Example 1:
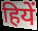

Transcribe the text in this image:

हियें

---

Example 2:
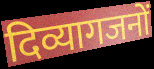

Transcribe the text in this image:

दिव्यागजनों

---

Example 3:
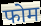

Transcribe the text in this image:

फोम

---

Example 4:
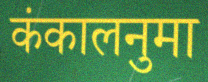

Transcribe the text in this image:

कंकालनुमा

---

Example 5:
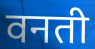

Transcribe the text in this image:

वनती